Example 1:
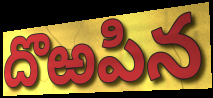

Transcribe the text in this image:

దొఱపిన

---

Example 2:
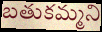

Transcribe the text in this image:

బతుకమ్మని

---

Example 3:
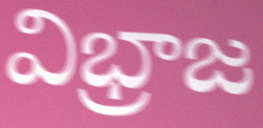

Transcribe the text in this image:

విభ్రాజ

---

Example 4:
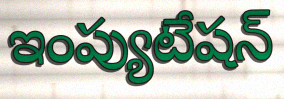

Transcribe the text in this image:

ఇంప్యుటేషన్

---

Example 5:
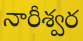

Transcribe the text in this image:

నారీశ్వర